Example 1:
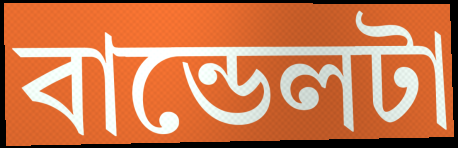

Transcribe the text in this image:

বান্ডেলটা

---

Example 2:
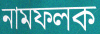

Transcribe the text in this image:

নামফলক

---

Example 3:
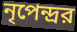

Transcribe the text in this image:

নৃপেন্দ্রর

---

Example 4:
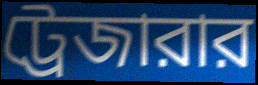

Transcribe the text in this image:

ট্রেজারার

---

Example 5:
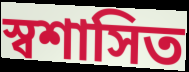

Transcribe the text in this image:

স্বশাসিত